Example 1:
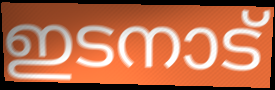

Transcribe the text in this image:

ഇടനാട്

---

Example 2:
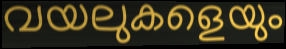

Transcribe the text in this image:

വയലുകളെയും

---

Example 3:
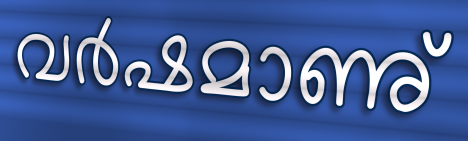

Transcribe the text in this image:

വർഷമാണു്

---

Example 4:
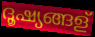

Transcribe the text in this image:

ദൂഷ്യങ്ങള്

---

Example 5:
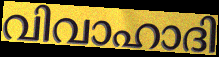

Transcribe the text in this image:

വിവാഹാദി